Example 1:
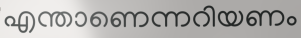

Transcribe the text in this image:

എന്താണെന്നറിയണം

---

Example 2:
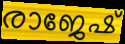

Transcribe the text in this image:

രാജേഷ്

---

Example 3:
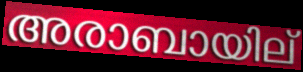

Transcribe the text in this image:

അരാബായില്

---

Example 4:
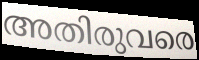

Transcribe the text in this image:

അതിരുവരെ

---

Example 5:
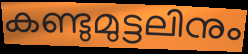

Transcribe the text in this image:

കണ്ടുമുട്ടലിനും